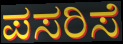
ಪಸರಿಸೆ